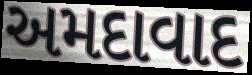
અમદાવાદ